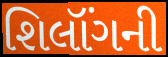
શિલૉંગની